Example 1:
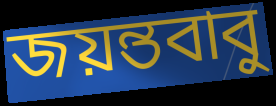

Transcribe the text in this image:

জয়ন্তবাবু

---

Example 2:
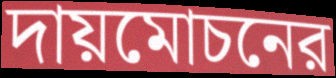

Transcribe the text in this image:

দায়মোচনের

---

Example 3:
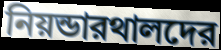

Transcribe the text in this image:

নিয়ন্ডারথালদের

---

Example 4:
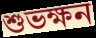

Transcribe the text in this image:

শুভক্ষন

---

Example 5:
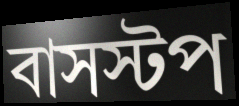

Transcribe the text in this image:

বাসস্টপ